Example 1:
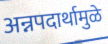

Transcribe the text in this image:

अन्नपदार्थामुळे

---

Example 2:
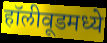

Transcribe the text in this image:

हॉलीवूडमध्ये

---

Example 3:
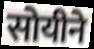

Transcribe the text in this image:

सोयीने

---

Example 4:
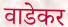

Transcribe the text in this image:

वाडेकर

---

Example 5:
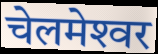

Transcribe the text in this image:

चेलमेश्‍वर